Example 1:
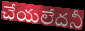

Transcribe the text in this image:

చేయలేదనీ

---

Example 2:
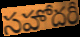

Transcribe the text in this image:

సహోదరీ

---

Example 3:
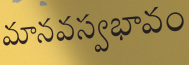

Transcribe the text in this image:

మానవస్వభావం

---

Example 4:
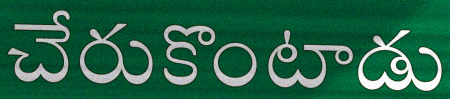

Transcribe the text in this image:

చేరుకొంటాడు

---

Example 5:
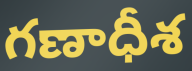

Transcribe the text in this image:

గణాధీశ